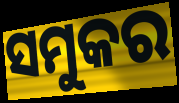
ସମୁକର